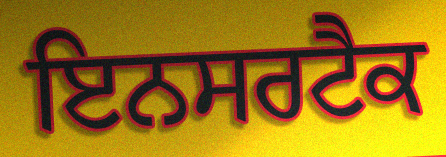
ਇਨਸਰਟੈਕ